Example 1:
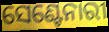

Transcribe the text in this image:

ସେଣ୍ଟେନାରୀ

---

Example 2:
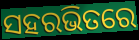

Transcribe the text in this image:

ସହରଭିତରେ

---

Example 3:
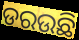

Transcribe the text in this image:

ଡରଉଛି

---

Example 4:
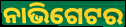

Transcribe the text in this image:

ନାଭିଗେଟର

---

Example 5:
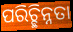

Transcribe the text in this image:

ପରିଚ୍ଛିନ୍ନତା